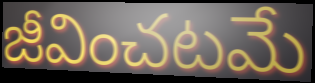
జీవించటమే